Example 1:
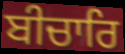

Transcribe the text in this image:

ਬੀਚਾਰਿ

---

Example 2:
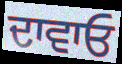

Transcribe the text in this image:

ਦਾਵਾਓ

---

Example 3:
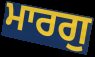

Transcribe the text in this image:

ਮਾਰਗੁ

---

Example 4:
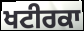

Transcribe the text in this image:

ਖਟੀਰਕਾ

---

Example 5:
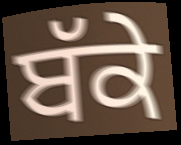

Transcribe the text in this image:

ਬੱਕੇ